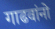
गाढवांनो